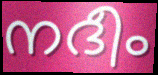
നദീം